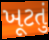
ખૂટતું